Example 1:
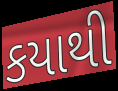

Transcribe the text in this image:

કયાથી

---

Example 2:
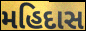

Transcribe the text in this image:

મહિદાસ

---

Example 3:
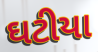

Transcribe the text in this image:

ઘટીયા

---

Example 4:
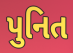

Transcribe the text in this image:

પુનિત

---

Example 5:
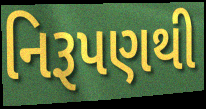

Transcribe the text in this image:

નિરૂપણથી